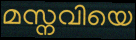
മസ്നവിയെ